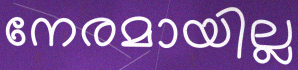
നേരമായില്ല